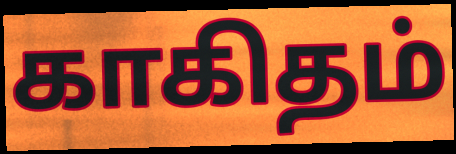
காகிதம்